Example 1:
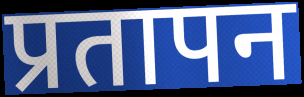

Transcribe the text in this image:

प्रतापन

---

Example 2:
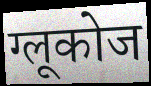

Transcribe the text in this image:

ग्लूकोज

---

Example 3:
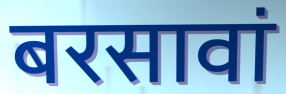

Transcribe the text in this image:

बरसावां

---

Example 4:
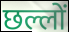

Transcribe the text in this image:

छल्लों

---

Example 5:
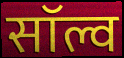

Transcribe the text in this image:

सॉल्व